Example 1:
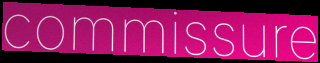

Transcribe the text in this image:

commissure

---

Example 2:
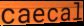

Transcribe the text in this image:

caecal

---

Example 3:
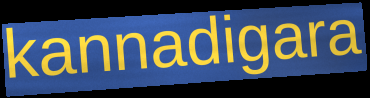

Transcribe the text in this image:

kannadigara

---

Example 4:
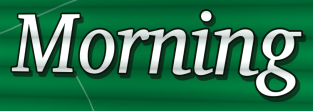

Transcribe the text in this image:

Morning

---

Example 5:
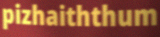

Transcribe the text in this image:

pizhaiththum